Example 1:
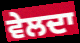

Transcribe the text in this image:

ਵੇਲਦਾ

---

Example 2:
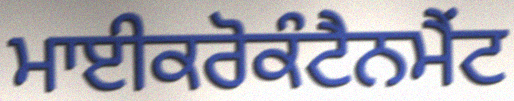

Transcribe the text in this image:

ਮਾਈਕਰੋਕੰਟੈਨਮੈਂਟ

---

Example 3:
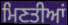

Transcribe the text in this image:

ਮਿਣਤੀਆਂ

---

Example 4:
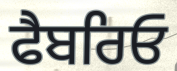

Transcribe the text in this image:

ਫੈਬਰਿਓ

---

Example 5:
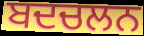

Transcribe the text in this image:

ਬਦਚਲਨ